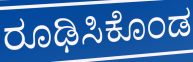
ರೂಢಿಸಿಕೊಂಡ